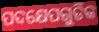
ପଦକ୍ଷେପଗୁଡିକ